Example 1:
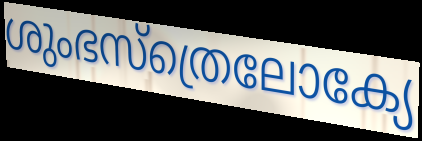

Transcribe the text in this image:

ശുംഭസ്ത്രെലോക്യേ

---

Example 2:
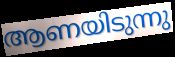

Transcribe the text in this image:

ആണയിടുന്നു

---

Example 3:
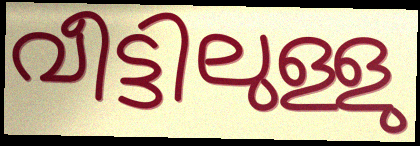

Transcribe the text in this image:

വീട്ടിലുള്ളു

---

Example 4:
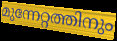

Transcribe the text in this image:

മുന്നേറ്റത്തിനും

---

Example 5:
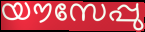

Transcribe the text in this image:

യൗസേപ്പു